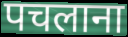
पचलाना